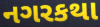
નગરકથા